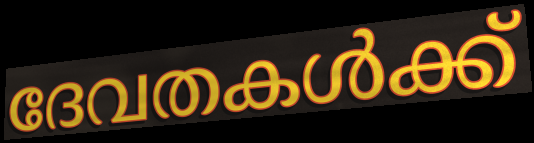
ദേവതകൾക്ക്